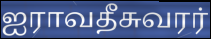
ஐராவதீசுவரர்